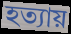
হত্যায়